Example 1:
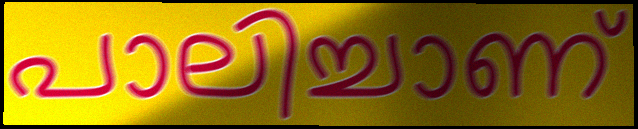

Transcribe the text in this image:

പാലിച്ചാണ്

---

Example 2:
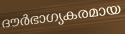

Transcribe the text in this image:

ദൗർഭാഗ്യകരമായ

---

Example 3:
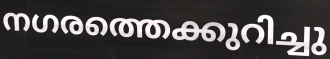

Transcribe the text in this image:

നഗരത്തെക്കുറിച്ചു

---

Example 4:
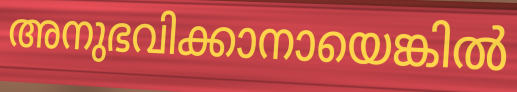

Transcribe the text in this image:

അനുഭവിക്കാനായെങ്കിൽ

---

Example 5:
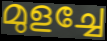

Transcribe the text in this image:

മുളച്ചേ